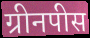
ग्रीनपीस